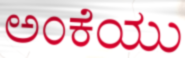
ಅಂಕೆಯು